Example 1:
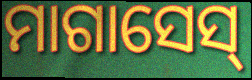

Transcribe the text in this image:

ମାଗାସେସ୍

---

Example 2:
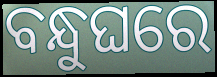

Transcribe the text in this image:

ବନ୍ଧୁଘରେ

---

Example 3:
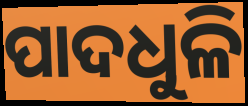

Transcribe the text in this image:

ପାଦଧୁଳି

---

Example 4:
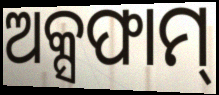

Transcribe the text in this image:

ଅକ୍ସଫାମ୍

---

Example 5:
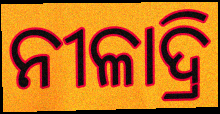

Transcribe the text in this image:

ନୀଳାଦ୍ରି